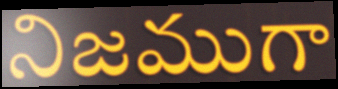
నిజముగా